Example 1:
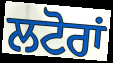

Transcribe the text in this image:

ਲਟੋਰਾਂ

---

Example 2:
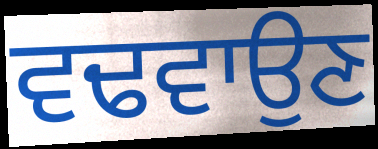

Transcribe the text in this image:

ਵਢਵਾਉਣ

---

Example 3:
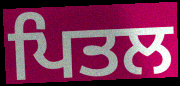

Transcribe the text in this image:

ਪਿਤਲ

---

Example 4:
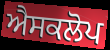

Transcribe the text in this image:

ਐਸਕਲੋਪ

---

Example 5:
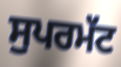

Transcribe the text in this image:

ਸੁਪਰਮੱਟ